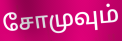
சோமுவும்